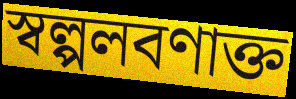
স্বল্পলবণাক্ত